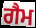
ਗੈਮ